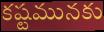
కష్టమునకు